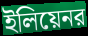
ইলিয়েনর